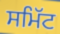
ਸਮਿੱਟ